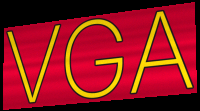
VGA